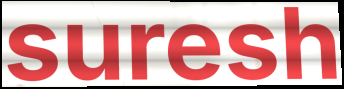
suresh